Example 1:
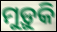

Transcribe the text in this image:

ମୁଡ଼ୁକି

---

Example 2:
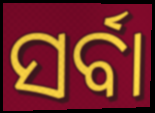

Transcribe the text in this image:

ସର୍ବା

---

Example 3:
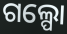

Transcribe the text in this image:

ଗଲ୍ପୋ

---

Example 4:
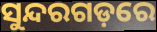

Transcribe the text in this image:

ସୁନ୍ଦରଗଡ଼ରେ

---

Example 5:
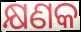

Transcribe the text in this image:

କ୍ଷଣକ